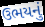
ઉભયનું